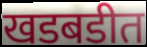
खडबडीत